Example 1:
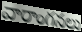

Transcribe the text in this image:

వారాంగనలు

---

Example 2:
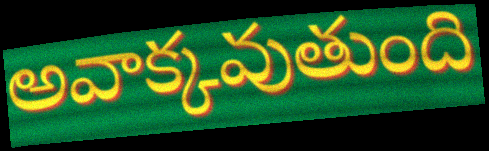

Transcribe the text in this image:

అవాక్కవుతుంది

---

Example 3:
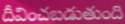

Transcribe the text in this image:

దీవించబడుతుంది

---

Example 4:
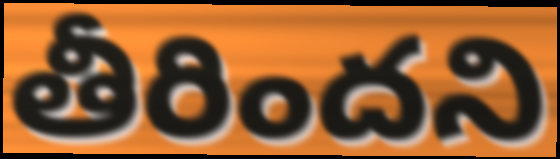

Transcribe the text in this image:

తీరిందని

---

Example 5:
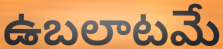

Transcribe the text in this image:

ఉబలాటమే